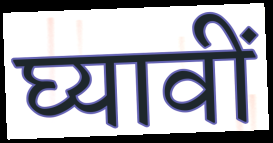
घ्यावीं